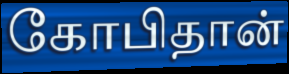
கோபிதான்